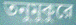
তনুমুকুরে